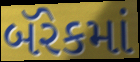
બૅરેકમાં